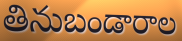
తినుబండారాల